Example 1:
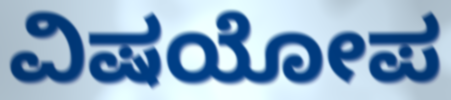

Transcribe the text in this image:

ವಿಷಯೋಪ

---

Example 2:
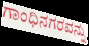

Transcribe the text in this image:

ಗಾಂಧಿನಗರವನ್ನು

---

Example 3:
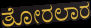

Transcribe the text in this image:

ತೋರಲಾರ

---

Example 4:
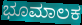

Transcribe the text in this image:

ಭೂಮಾಲಕ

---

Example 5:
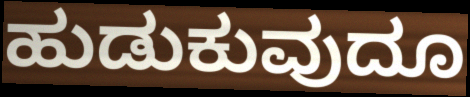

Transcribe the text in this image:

ಹುಡುಕುವುದೂ